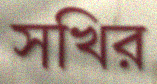
সখির